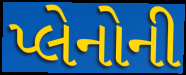
પ્લેનોની